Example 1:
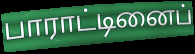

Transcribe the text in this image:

பாராட்டினைப்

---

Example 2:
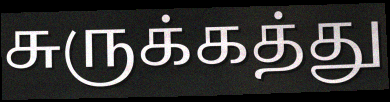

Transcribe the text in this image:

சுருக்கத்து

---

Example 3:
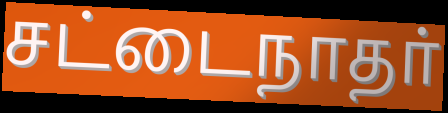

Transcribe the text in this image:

சட்டைநாதர்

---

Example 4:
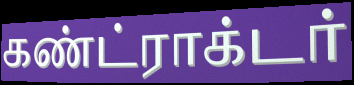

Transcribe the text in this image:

கண்ட்ராக்டர்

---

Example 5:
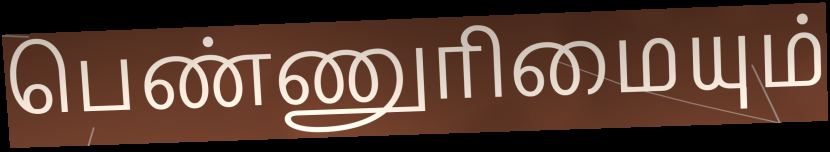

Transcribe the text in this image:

பெண்ணுரிமையும்